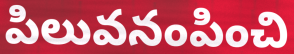
పిలువనంపించి